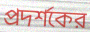
প্রদর্শকের